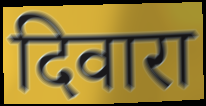
दिवारा